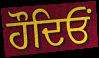
ਹੌਦਿਓਂ